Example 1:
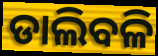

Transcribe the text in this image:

ଡାଲିବଳି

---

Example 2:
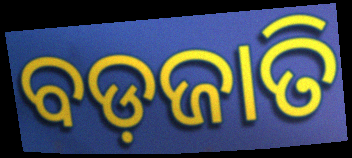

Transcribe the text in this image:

ବଡ଼ଜାତି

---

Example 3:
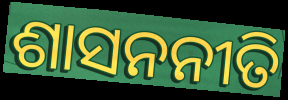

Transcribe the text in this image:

ଶାସନନୀତି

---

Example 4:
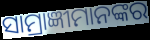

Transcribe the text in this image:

ସାମ୍ରାଜ୍ଞୀମାନଙ୍କର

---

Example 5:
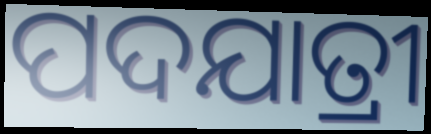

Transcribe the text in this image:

ପଦଯାତ୍ରୀ